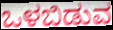
ಒಳಬಿಡುವ